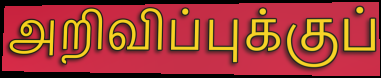
அறிவிப்புக்குப்